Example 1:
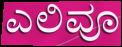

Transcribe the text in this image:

ಎಲಿವೂ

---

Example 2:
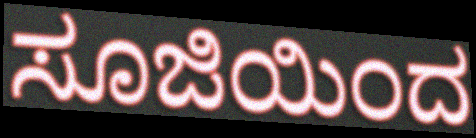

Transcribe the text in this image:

ಸೂಜಿಯಿಂದ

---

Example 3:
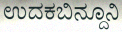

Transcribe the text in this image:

ಉದಕಬಿನ್ದೂನಿ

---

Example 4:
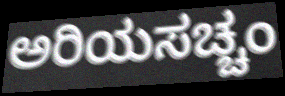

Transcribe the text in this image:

ಅರಿಯಸಚ್ಚಂ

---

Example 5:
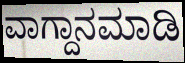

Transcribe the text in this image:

ವಾಗ್ದಾನಮಾಡಿ